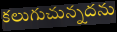
కలుగుచున్నదను